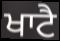
ਖਾਟੈ